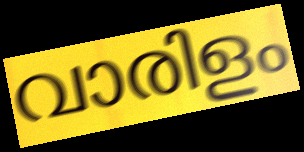
വാരിളം